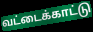
வட்டைக்காட்டு